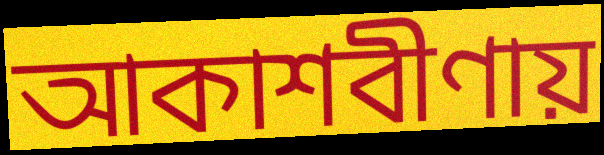
আকাশবীণায়